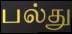
பல்து